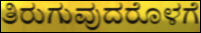
ತಿರುಗುವುದರೊಳಗೆ